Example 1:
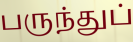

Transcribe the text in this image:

பருந்துப்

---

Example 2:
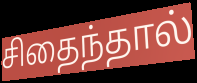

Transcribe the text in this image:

சிதைந்தால்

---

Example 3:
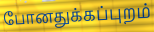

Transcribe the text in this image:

போனதுக்கப்புறம்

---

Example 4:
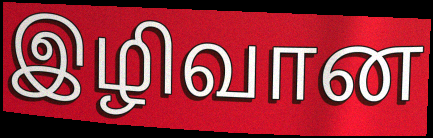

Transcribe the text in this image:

இழிவான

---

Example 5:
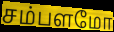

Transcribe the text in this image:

சம்பளமோ